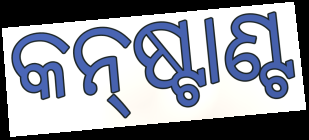
କନ୍‌ଷ୍ଟାଣ୍ଟ